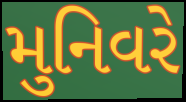
મુનિવરે